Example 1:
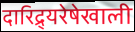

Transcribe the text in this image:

दारिद्र्यरेषेखाली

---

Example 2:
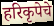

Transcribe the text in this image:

हरिकृपेचे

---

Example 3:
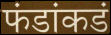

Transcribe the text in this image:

फंडांकडं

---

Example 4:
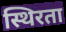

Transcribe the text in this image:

स्थिरता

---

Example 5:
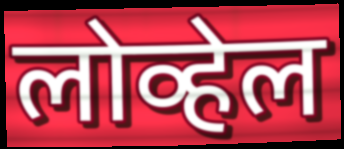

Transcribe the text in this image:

लोव्हेल